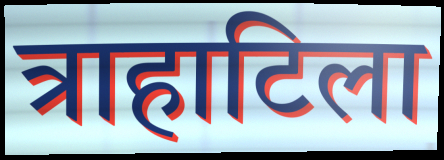
त्राहाटिला